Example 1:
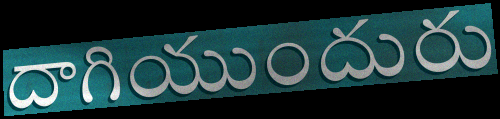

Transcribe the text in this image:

దాగియుందురు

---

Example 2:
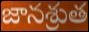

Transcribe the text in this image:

జానశ్రుత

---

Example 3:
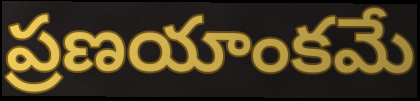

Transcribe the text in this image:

ప్రణయాంకమే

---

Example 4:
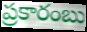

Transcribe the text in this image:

ప్రకారంబు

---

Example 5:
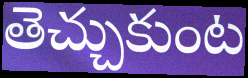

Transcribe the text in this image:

తెచ్చుకుంట